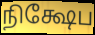
நிக்ஷேப